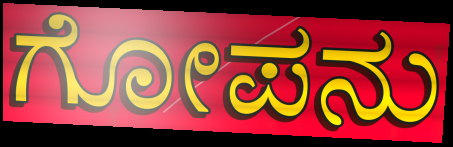
ಗೋಪನು